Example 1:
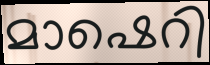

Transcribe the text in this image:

മാഷെറി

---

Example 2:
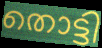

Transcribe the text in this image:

തൊട്ടി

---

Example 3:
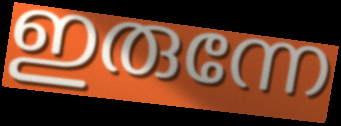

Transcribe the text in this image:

ഇരുന്നേ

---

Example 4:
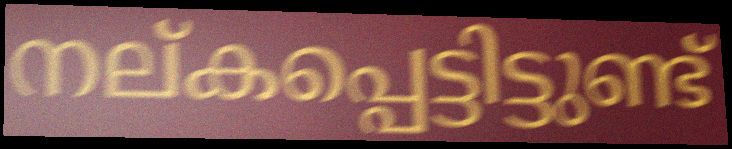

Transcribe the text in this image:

നല്കപ്പെട്ടിട്ടുണ്ട്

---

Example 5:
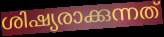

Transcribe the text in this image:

ശിഷ്യരാക്കുന്നത്